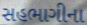
સહભાગીના